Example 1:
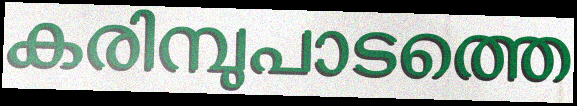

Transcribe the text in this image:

കരിമ്പുപാടത്തെ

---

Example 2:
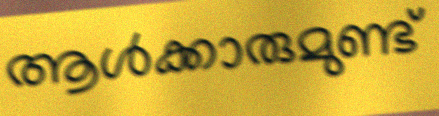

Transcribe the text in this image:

ആൾക്കാരുമുണ്ട്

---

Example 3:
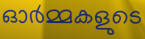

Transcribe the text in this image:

ഓർമ്മകളുടെ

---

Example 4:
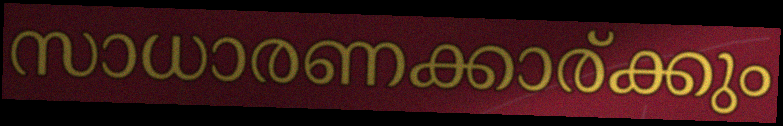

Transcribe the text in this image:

സാധാരണക്കാര്ക്കും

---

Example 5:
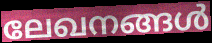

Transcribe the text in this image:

ലേഖനങ്ങൾ